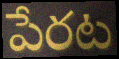
పేరట